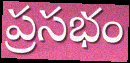
ప్రసభం